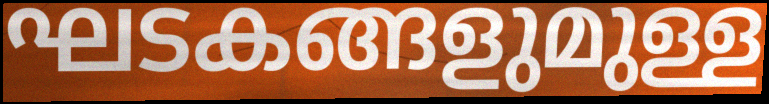
ഘടകങ്ങളുമുള്ള